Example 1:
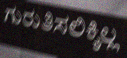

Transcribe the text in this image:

ಗುರುತಿಸಲಿಕ್ಕಿಲ್ಲ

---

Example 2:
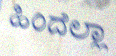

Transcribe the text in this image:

ಹಿಂದೆಲ್ಲಾ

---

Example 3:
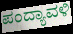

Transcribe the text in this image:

ಪಂದ್ಯಾವಳಿ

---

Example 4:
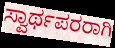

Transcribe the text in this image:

ಸ್ವಾರ್ಥಪರರಾಗಿ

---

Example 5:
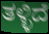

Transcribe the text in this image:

ತಳ್ಳಿದೆ